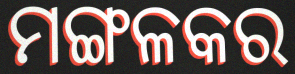
ମଙ୍ଗଳକର